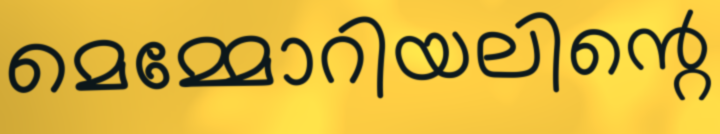
മെമ്മോറിയലിന്റെ